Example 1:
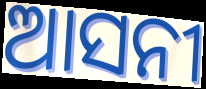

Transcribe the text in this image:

ଆସନୀ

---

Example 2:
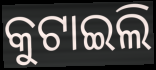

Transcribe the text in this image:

କୁଟାଇଲି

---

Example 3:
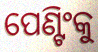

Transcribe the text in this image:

ପେଣ୍ଟିଂକୁ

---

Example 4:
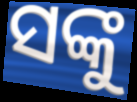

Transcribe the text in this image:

ସଙ୍କୁ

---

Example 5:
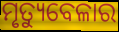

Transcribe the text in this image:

ମୃତ୍ୟୁବେଳାର